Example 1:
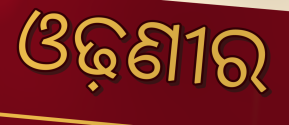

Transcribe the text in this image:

ଓଢ଼ଣୀର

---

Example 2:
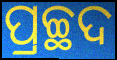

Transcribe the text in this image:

ପ୍ରଚ୍ଛଦ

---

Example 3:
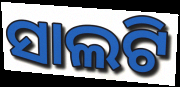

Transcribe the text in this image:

ସାଲଟି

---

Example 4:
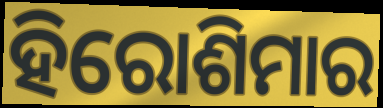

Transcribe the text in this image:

ହିରୋଶିମାର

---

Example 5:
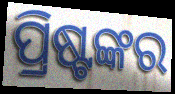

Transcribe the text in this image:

ପ୍ରିଷ୍ଟଙ୍କର